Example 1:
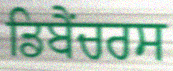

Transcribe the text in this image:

ਡਿਬੈਂਚਰਸ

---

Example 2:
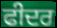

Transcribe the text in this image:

ਫੀਦਰ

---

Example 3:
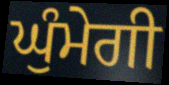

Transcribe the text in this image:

ਘੁੰਮੇਗੀ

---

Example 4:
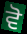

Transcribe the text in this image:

ਵੋ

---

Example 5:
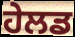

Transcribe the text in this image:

ਹੇਲਡ